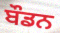
ਬੌਡਨ